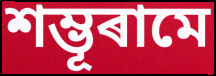
শম্ভূৰামে